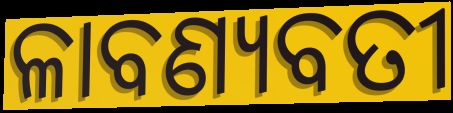
ଳାବଣ୍ୟବତୀ